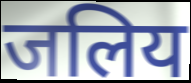
जलिय